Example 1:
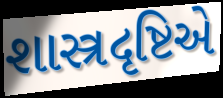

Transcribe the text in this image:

શાસ્ત્રદૃષ્ટિએ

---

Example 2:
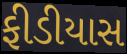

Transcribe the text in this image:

ફીડીયાસ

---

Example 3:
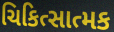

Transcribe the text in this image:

ચિકિત્સાત્મક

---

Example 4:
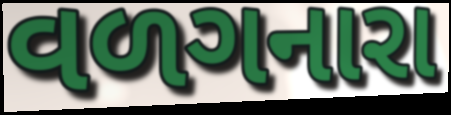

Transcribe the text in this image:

વળગનારા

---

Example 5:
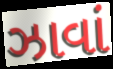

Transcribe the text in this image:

ઝાવાં